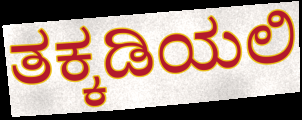
ತಕ್ಕಡಿಯಲಿ